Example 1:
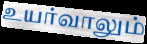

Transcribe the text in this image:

உயர்வாலும்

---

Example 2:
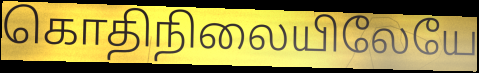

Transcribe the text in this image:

கொதிநிலையிலேயே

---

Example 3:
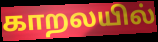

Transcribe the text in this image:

காறலயில்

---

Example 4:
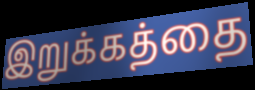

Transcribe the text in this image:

இறுக்கத்தை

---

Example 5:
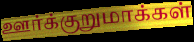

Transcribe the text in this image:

ஊர்க்குறுமாக்கள்